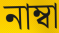
নাম্বা